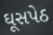
ઘૂસપેઠ